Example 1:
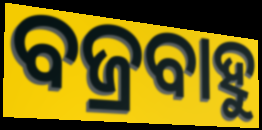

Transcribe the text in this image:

ବଜ୍ରବାହୁ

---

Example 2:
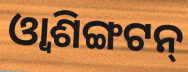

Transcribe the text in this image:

ଓ୍ୱାଶିଙ୍ଗଟନ୍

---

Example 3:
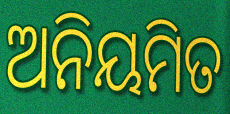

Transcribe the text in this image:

ଅନିୟମିତ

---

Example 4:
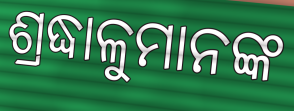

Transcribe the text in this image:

ଶ୍ରଦ୍ଧାଳୁମାନଙ୍କ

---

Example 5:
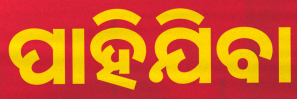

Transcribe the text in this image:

ପାହିଯିବା